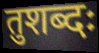
तुशब्दः